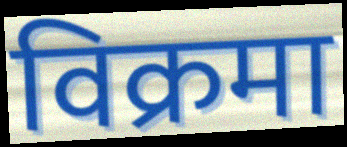
विक्रमा